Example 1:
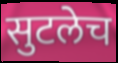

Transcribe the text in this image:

सुटलेच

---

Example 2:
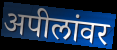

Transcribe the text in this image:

अपीलांवर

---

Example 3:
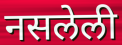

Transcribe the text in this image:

नसलेली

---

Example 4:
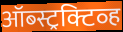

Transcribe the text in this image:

ऑब्स्ट्रक्टिव्ह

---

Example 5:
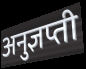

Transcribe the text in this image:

अनुज्ञप्ती